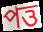
পত্ত